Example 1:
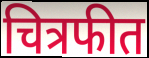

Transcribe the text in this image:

चित्रफीत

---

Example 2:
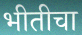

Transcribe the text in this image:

भीतीचा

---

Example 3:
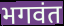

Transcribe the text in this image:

भगवंत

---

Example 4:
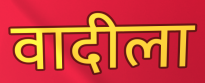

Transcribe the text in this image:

वादीला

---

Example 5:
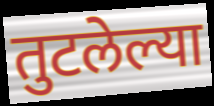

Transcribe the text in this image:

तुटलेल्या